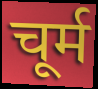
चूर्म